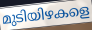
മുടിയിഴകളെ